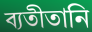
ব্যতীতানি